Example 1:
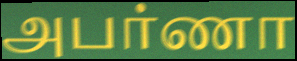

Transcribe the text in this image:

அபர்ணா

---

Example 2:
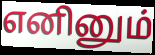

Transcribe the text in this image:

எனினும்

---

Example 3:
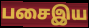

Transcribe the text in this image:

பசைஇய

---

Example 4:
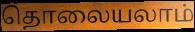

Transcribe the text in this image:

தொலையலாம்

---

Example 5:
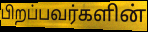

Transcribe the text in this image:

பிறப்பவர்களின்